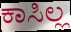
ಕಾಸಿಲ್ಲ